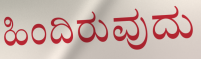
ಹಿಂದಿರುವುದು